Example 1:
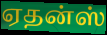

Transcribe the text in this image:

ஏதன்ஸ்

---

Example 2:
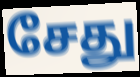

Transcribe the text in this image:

சேது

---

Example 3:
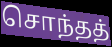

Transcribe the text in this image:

சொந்தத்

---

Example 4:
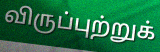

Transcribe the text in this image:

விருப்புற்றுக்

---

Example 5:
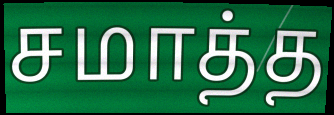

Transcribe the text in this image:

சமாத்த